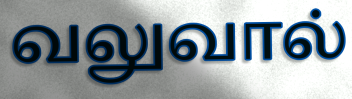
வலுவால்